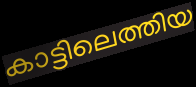
കാട്ടിലെത്തിയ